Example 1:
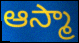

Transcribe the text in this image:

ఆస్మా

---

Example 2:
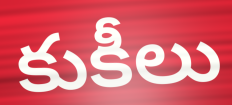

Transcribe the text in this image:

కుకీలు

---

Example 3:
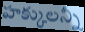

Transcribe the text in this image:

హక్కులన్నీ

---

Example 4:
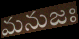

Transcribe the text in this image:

మనుజః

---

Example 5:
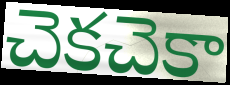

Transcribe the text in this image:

చెకచెకా